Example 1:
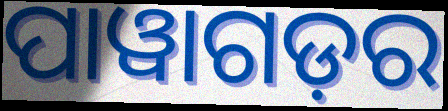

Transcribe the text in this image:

ପାୱାଗଡ଼ର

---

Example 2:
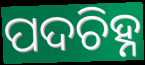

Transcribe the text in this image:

ପଦଚିହ୍ନ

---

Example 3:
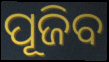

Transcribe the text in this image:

ପୂଜିବ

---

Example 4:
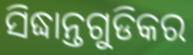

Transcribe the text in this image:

ସିଦ୍ଧାନ୍ତଗୁଡିକର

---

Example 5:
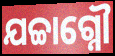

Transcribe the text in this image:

ଯଚ୍ଚାଗ୍ନୌ